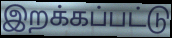
இறக்கப்பட்டு